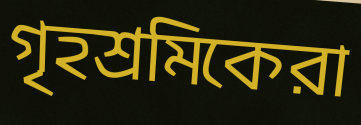
গৃহশ্রমিকেরা